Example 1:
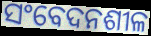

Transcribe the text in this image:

ସଂବେଦନଶୀଳ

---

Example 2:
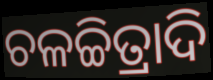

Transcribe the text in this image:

ଚଳଚ୍ଚିତ୍ରାଦି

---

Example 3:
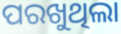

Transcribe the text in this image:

ପରଖୁଥିଲା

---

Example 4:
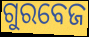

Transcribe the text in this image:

ଗୁରବେଜ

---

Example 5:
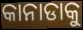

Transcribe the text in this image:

କାନାଡାକୁ